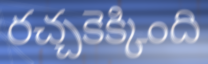
రచ్చకెక్కింది